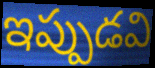
ఇప్పుడవి